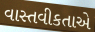
વાસ્તવીકતાએ